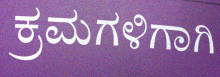
ಕ್ರಮಗಳಿಗಾಗಿ